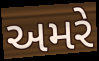
અમરે